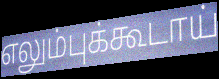
எலும்புக்கூடாய்